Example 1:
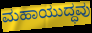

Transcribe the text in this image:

ಮಹಾಯುದ್ಧವು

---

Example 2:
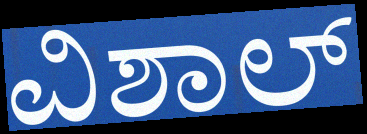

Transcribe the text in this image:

ವಿಶಾಲ್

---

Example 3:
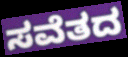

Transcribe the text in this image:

ಸವೆತದ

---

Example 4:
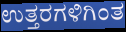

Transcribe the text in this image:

ಉತ್ತರಗಳಿಗಿಂತ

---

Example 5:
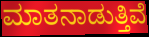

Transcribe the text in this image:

ಮಾತನಾಡುತ್ತಿವೆ